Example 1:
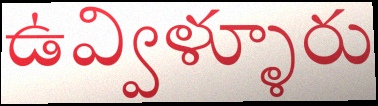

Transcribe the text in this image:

ఉవ్విళ్ళూరు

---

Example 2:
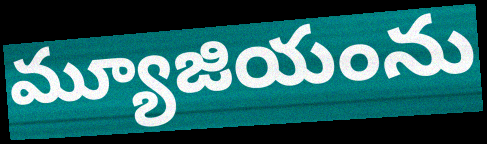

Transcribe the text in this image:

మ్యూజియంను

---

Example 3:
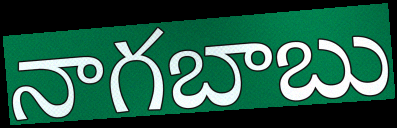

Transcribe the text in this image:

నాగబాబు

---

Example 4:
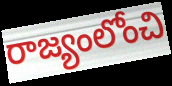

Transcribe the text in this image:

రాజ్యంలోంచి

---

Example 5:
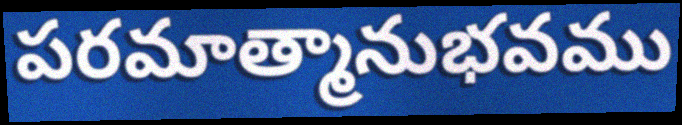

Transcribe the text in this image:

పరమాత్మానుభవము